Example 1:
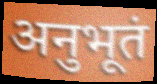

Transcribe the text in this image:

अनुभूतं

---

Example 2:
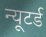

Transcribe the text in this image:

न्यूटर्ड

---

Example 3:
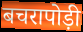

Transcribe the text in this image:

बचरापोड़ी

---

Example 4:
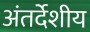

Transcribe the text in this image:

अंतर्देशीय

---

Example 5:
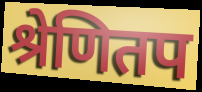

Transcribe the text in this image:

श्रेणितप